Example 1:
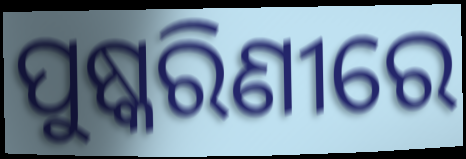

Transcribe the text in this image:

ପୁଷ୍କରିଣୀରେ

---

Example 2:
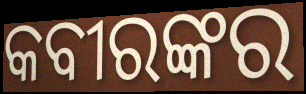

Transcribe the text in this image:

କବୀରଙ୍କର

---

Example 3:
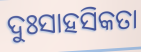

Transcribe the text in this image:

ଦୁଃସାହସିକତା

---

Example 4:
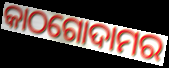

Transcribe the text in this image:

କାଠଗୋଦାମର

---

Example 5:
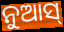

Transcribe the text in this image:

ନୁଆସ୍